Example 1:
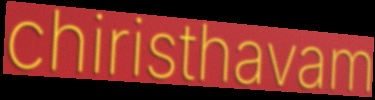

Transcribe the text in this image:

chiristhavam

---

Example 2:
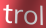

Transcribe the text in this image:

trol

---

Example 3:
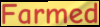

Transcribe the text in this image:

Farmed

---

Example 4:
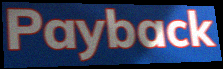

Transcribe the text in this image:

Payback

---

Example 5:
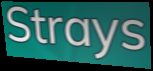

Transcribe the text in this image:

Strays